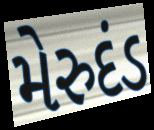
મેરુદંડ